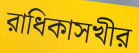
রাধিকাসখীর